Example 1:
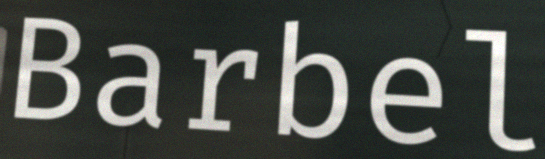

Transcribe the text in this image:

Barbel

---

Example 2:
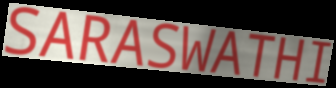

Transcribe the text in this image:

SARASWATHI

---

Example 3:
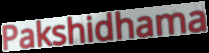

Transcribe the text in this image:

Pakshidhama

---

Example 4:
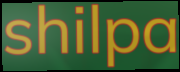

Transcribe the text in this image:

shilpa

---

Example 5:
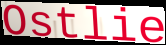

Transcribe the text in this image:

Ostlie